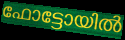
ഫോട്ടോയിൽ